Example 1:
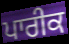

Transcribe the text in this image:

ਪਾਰੀਕ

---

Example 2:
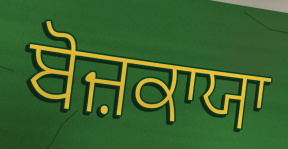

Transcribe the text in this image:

ਬੋਜ਼ਕਾਯਾ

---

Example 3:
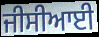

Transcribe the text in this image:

ਜੀਸੀਆਈ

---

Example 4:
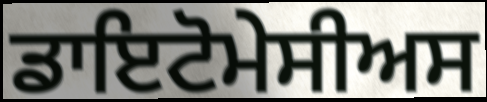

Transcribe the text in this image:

ਡਾਇਟੋਮੇਸੀਅਸ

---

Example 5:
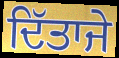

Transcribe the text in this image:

ਦਿੱਤਾਜੇ